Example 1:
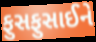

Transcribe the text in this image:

ફુસફુસાઈને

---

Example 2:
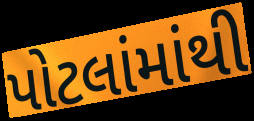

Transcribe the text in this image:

પોટલાંમાંથી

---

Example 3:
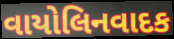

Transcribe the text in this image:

વાયોલિનવાદક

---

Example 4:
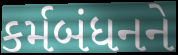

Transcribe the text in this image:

કર્મબંધનને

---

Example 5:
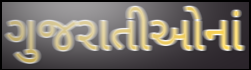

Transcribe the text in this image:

ગુજરાતીઓનાં